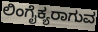
ಲಿಂಗೈಕ್ಯರಾಗುವ